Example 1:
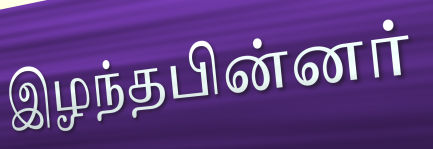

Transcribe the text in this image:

இழந்தபின்னர்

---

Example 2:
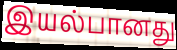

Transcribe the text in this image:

இயல்பானது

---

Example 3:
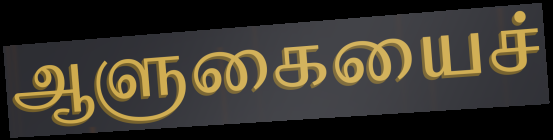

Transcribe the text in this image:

ஆளுகையைச்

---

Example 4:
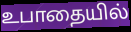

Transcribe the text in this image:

உபாதையில்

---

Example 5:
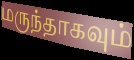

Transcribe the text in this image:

மருந்தாகவும்